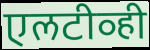
एलटीव्ही